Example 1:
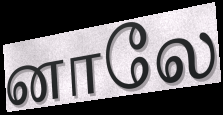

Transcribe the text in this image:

னாலே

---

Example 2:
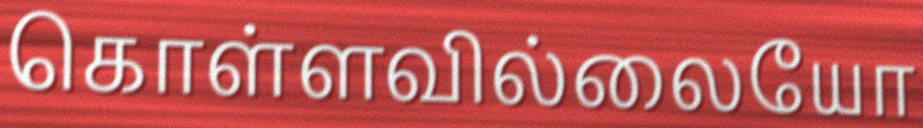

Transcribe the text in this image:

கொள்ளவில்லையோ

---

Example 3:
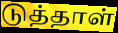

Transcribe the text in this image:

டுத்தாள்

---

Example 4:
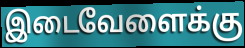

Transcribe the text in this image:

இடைவேளைக்கு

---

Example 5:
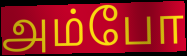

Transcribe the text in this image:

அம்போ